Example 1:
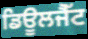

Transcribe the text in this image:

ਡਿਊਲਜੈੱਟ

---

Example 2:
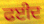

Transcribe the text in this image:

ਫਈਦ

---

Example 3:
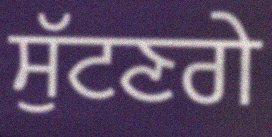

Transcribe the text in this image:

ਸੁੱਟਣਗੇ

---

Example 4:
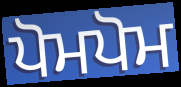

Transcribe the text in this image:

ਪੋਮਪੋਮ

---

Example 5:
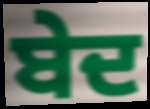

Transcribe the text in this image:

ਬੇਦ